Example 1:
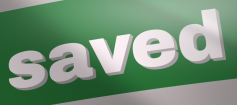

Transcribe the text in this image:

saved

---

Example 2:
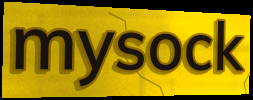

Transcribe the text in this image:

mysock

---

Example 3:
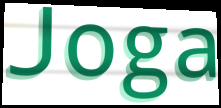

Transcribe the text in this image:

Joga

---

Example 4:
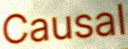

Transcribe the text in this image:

Causal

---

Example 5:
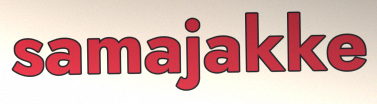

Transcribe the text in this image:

samajakke